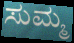
ಸುಮ್ಮ